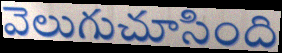
వెలుగుచూసింది